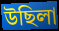
উছিলা